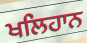
ਖਲਿਹਾਨ